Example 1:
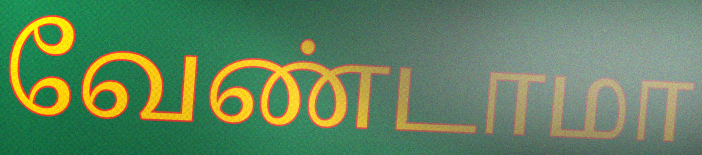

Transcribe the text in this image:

வேண்டாமா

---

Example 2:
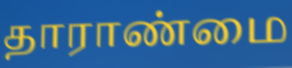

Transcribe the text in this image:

தாராண்மை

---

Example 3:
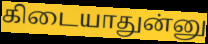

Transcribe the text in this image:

கிடையாதுன்னு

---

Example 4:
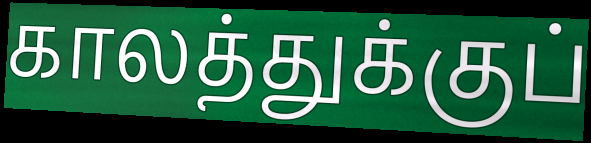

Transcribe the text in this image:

காலத்துக்குப்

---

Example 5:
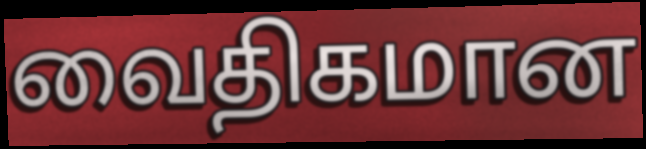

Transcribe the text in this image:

வைதிகமான